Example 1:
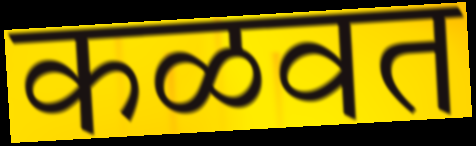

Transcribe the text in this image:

कळवत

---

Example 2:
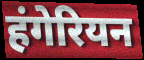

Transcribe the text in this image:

हंगेरियन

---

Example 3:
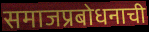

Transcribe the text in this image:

समाजप्रबोधनाची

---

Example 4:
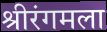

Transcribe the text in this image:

श्रीरंगमला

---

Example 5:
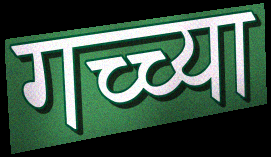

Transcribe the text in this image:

गच्च्या